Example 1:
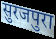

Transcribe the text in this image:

सुरजपुरा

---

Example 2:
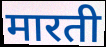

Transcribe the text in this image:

मारती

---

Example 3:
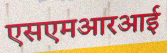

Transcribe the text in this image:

एसएमआरआई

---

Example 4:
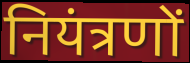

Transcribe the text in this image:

नियंत्रणों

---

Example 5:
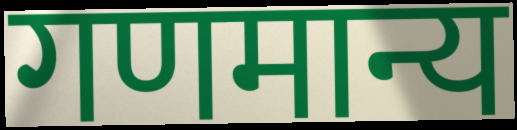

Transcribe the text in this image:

गणमान्य